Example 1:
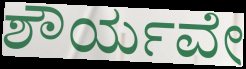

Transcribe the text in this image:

ಶೌರ್ಯವೇ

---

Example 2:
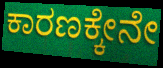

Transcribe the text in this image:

ಕಾರಣಕ್ಕೇನೇ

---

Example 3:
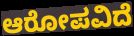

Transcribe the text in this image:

ಆರೋಪವಿದೆ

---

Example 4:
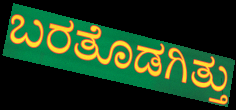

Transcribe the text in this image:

ಬರತೊಡಗಿತ್ತು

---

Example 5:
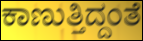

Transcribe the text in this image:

ಕಾಣುತ್ತಿದ್ದಂತೆ